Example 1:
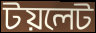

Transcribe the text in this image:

টয়লেট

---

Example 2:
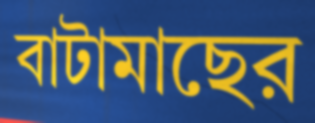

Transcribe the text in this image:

বাটামাছের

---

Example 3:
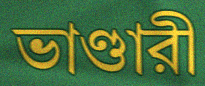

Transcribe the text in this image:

ভাণ্ডারী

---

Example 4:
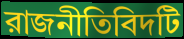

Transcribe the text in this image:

রাজনীতিবিদটি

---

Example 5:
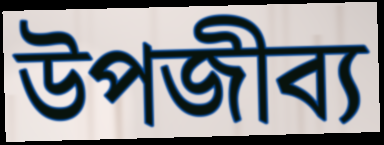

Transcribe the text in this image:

উপজীব্য